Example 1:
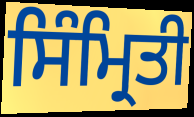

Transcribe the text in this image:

ਸਿੰਮ੍ਰਿਤੀ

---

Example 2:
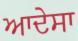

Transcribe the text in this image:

ਆਦੇਸਾ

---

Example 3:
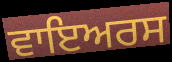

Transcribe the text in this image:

ਵਾਇਅਰਸ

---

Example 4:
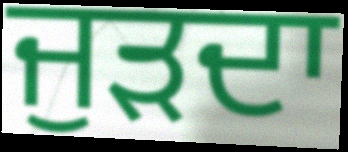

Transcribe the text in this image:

ਜੁੜਦਾ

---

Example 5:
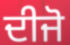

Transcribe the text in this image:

ਦੀਜੋ